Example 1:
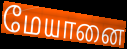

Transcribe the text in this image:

மேயானை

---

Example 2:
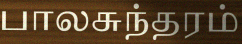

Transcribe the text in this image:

பாலசுந்தரம்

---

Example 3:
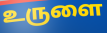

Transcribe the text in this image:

உருளை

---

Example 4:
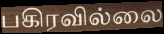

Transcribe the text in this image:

பகிரவில்லை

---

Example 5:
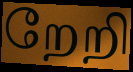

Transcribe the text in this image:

றேறி